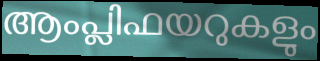
ആംപ്ലിഫയറുകളും